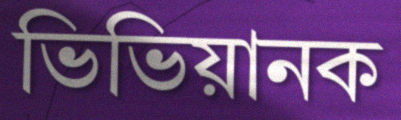
ভিভিয়ানক